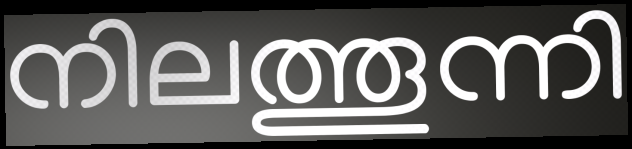
നിലത്തൂന്നി